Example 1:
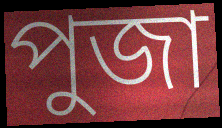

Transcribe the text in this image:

পুজা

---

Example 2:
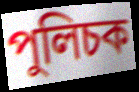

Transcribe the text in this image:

পুলিচক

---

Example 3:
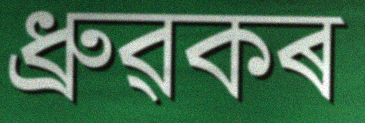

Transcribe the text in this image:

ধ্ৰুৱকৰ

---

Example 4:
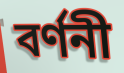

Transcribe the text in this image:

বৰ্ণনী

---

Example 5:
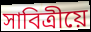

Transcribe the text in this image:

সাবিত্ৰীয়ে